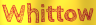
Whittow